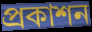
প্রকাশন